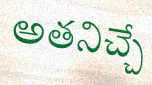
అతనిచ్చే